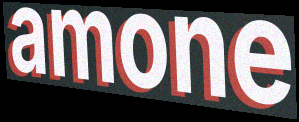
amone